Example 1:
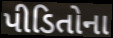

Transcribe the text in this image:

પીડિતોના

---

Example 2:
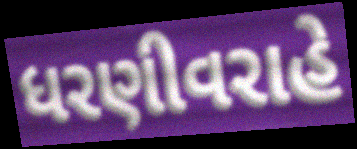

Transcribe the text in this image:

ધરણીવરાહે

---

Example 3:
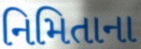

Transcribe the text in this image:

નિમિતાના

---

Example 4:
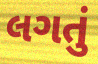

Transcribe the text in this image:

લગતું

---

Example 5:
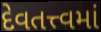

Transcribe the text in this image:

દેવતત્ત્વમાં